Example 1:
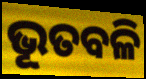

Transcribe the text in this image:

ଭୂତବଳି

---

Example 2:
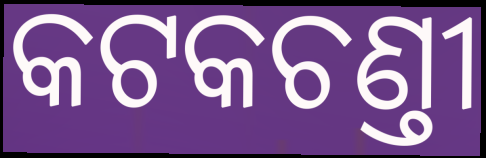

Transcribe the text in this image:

କଟକଚଣ୍ତୀ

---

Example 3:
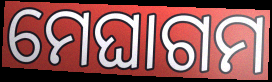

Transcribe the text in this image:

ମେଘାଗମ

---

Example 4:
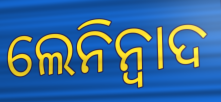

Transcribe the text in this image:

ଲେନିନ୍ବାଦ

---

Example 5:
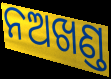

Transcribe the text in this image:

ନଅଖଣ୍ଡ